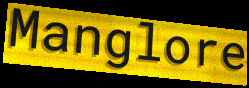
Manglore